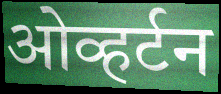
ओव्हर्टन